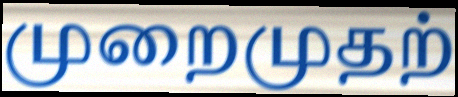
முறைமுதற்